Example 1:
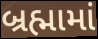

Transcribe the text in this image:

બ્રહ્મામાં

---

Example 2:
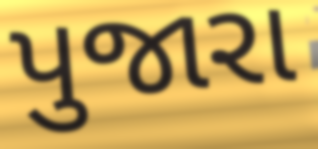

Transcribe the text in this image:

પુજારા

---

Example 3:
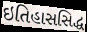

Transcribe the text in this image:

ઇતિહાસસિદ્ધ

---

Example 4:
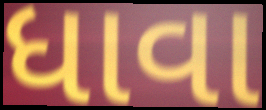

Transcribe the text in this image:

ધાવા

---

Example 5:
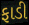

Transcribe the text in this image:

ફાડી